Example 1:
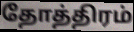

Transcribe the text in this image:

தோத்திரம்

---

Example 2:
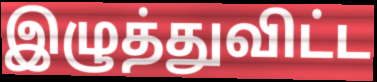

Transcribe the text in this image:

இழுத்துவிட்ட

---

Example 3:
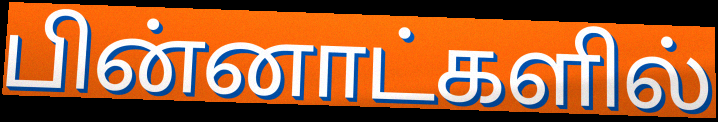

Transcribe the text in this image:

பின்னாட்களில்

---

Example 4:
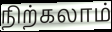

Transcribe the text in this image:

நிற்கலாம்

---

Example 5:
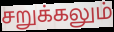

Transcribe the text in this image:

சறுக்கலும்